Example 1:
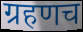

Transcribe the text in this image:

ग्रहणच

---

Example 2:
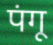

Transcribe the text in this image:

पंगू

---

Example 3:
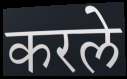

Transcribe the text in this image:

करले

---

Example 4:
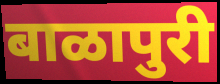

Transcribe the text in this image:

बाळापुरी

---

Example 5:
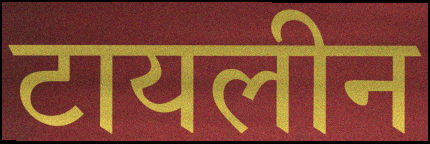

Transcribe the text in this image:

टायलीन